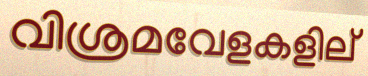
വിശ്രമവേളകളില്